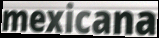
mexicana